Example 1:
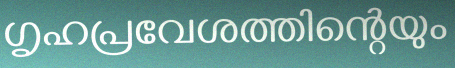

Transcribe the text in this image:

ഗൃഹപ്രവേശത്തിന്റെയും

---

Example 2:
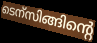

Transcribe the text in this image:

ടെന്സിങ്ങിന്റെ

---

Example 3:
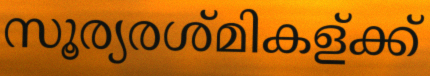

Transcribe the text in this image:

സൂര്യരശ്മികള്ക്ക്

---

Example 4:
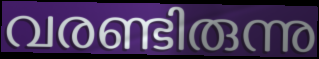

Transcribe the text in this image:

വരണ്ടിരുന്നു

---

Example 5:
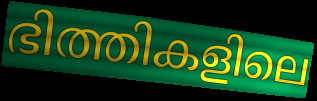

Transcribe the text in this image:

ഭിത്തികളിലെ